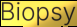
Biopsy